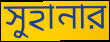
সুহানার